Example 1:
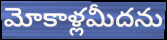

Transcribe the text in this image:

మోకాళ్లమీదను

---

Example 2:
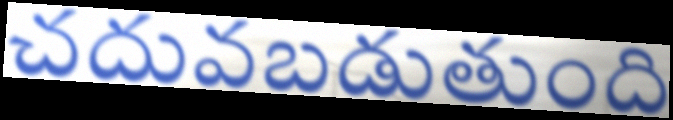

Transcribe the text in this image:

చదువబడుతుంది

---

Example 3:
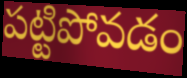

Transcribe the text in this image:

పట్టిపోవడం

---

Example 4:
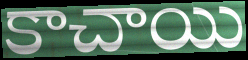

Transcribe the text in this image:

కాచాయి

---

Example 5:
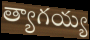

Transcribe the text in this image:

త్యాగయ్య